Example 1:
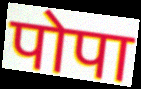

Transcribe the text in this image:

पोपा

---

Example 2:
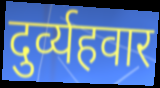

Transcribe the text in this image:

दुर्व्यहवार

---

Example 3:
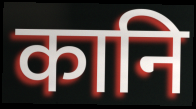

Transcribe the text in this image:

कानि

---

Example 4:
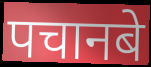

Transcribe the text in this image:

पचानबे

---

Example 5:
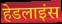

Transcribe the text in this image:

हेडलाइंस